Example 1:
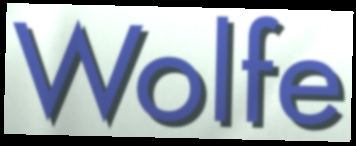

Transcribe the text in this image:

Wolfe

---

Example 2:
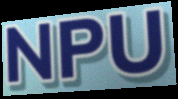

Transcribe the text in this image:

NPU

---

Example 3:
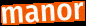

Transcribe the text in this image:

manor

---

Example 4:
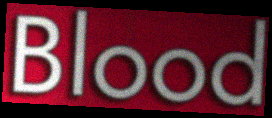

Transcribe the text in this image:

Blood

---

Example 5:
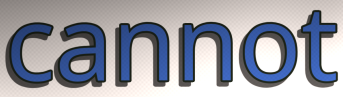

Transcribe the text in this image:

cannot